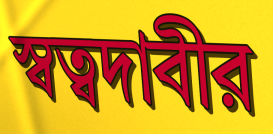
স্বত্বদাবীর